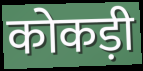
कोकड़ी